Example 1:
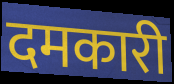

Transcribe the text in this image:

दमकारी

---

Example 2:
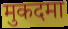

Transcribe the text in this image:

मुकदमा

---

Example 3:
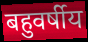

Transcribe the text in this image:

बहुवर्षीय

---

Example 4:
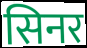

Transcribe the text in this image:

सिनर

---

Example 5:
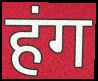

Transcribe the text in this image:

हंग